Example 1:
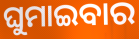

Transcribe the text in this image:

ଘୁମାଇବାର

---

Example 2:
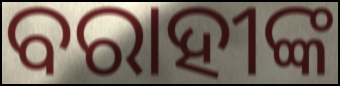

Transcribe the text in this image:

ବରାହୀଙ୍କ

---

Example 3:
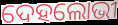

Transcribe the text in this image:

ଦେହଲୋଭୀ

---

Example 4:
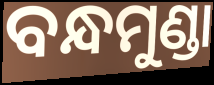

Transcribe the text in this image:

ବନ୍ଧମୁଣ୍ଡା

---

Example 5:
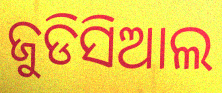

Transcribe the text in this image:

ଜୁଡିସିଆଲ